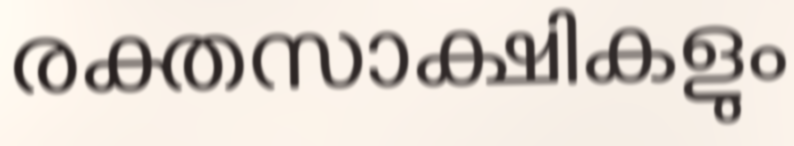
രക്തസാക്ഷികളും